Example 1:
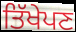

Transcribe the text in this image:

ਤਿੱਖੇਪਣ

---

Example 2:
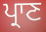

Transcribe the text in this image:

ਪ੍ਰਾਣ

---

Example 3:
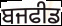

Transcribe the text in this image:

ਬਜਫੀਡ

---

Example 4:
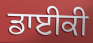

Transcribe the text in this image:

ਡਾਈਕੀ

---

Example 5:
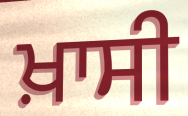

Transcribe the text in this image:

ਖ਼ਾਸੀ